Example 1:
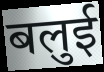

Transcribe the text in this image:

बलुई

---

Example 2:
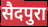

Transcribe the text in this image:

सैदपुरा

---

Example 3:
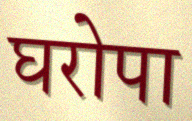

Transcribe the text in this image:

घरोपा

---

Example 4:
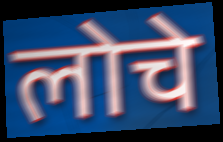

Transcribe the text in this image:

लोचे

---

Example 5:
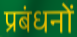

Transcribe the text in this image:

प्रबंधनों